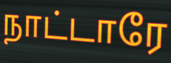
நாட்டாரே